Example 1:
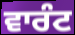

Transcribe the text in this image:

ਵਾਰੰਟ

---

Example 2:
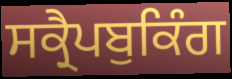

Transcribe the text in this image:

ਸਕ੍ਰੈਪਬੁਕਿੰਗ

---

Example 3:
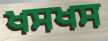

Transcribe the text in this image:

ਖਸਖਸ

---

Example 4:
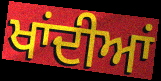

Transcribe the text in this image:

ਖਾਂਦੀਆਂ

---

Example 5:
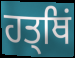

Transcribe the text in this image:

ਹਤ੍ਥਿਂ